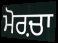
ਮੋਰ਼ਚਾ